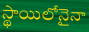
స్థాయిలోనైనా